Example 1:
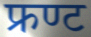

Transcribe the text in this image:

फ्रण्ट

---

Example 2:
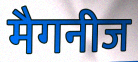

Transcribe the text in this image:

मैगनीज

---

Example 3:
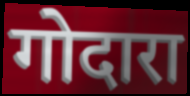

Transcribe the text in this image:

गोदारा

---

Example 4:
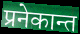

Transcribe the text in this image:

प्रनेकान्त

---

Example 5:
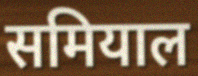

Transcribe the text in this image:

समियाल